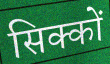
सिक्कों